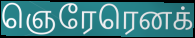
ஞெரேரெனக்